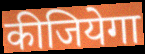
कीजियेगा